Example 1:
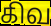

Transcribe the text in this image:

கிவ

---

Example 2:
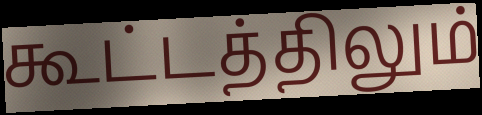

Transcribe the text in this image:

கூட்டத்திலும்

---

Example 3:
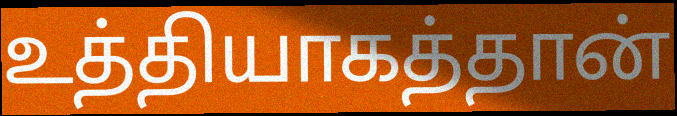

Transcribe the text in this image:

உத்தியாகத்தான்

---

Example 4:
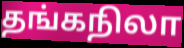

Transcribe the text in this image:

தங்கநிலா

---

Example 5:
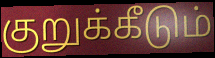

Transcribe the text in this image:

குறுக்கீடும்